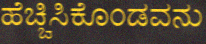
ಹೆಚ್ಚಿಸಿಕೊಂಡವನು